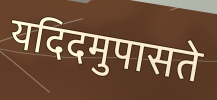
यदिदमुपासते